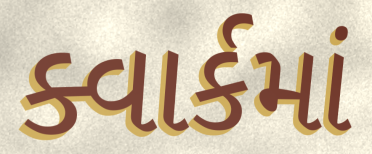
ક્વાર્કમાં